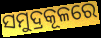
ସମୁଦ୍ରକୂଳରେ